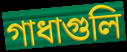
গাধাগুলি